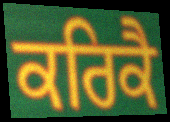
ਕਰਿਕੈ